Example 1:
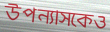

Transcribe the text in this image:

উপন্যাসকেও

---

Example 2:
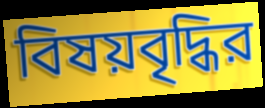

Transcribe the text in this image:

বিষয়বৃদ্ধির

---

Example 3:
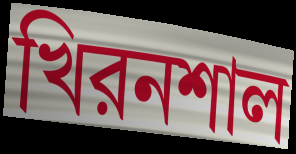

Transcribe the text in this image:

খিরনশাল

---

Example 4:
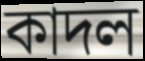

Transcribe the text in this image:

কাদল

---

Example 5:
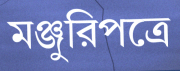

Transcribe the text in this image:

মঞ্জুরিপত্রে